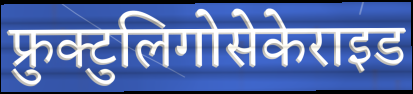
फ्रुक्टुलिगोसेकेराइड